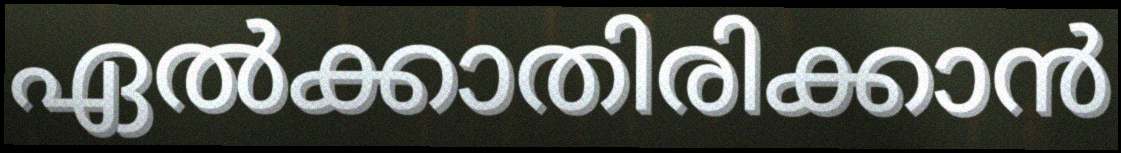
ഏൽക്കാതിരിക്കാൻ